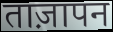
ताज़ापन